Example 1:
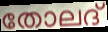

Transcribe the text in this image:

തോലദ്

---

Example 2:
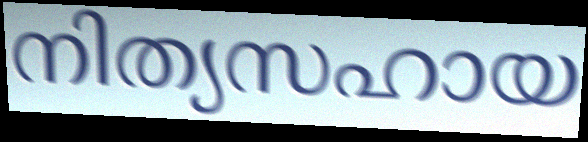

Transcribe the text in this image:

നിത്യസഹായ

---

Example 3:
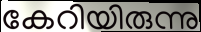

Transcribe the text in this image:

കേറിയിരുന്നു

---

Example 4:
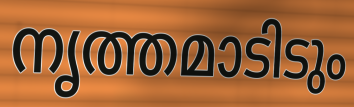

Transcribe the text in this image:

നൃത്തമാടിടും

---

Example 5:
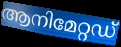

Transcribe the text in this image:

ആനിമേറ്റഡ്